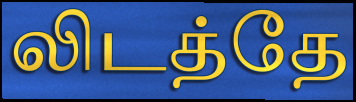
லிடத்தே